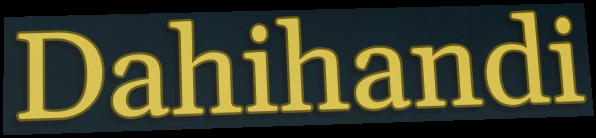
Dahihandi